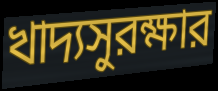
খাদ্যসুরক্ষার